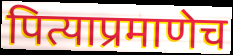
पित्याप्रमाणेच